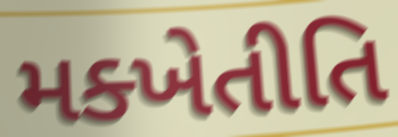
મક્ખેતીતિ